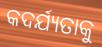
କଦର୍ଯ୍ୟତାକୁ